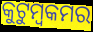
କୁଟୁମ୍ବକମର